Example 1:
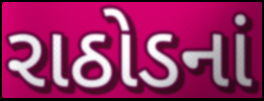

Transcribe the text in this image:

રાઠોડનાં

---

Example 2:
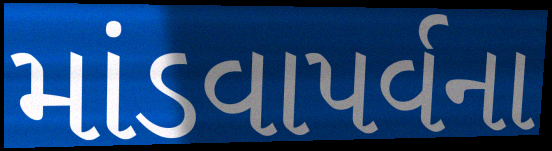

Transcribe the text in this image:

માંડવાપર્વના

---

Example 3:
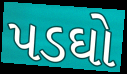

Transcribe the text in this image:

પડઘો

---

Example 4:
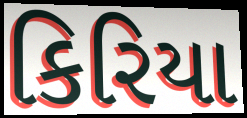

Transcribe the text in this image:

કિરિયા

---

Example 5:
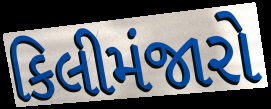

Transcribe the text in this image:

કિલીમંજારો